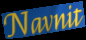
Navnit